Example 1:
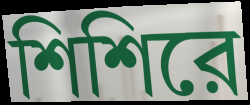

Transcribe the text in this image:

শিশিরে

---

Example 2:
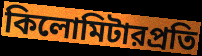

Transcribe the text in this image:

কিলোমিটারপ্রতি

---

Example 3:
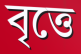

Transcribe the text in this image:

বৃত্তে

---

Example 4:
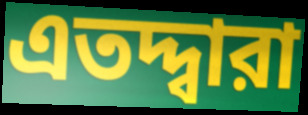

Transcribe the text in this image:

এতদ্দ্বারা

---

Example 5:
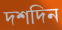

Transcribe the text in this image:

দশদিন